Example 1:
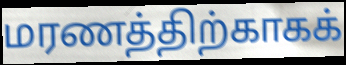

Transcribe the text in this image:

மரணத்திற்காகக்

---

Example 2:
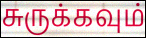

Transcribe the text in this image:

சுருக்கவும்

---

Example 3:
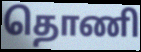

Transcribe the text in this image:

தொணி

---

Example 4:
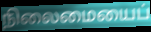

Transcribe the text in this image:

நிலைமையைப்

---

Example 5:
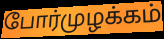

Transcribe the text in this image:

போர்முழக்கம்